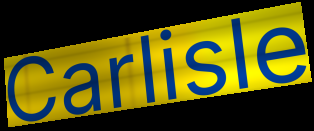
Carlisle